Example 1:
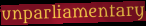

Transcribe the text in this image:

unparliamentary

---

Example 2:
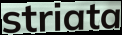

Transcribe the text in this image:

striata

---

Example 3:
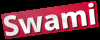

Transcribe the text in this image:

Swami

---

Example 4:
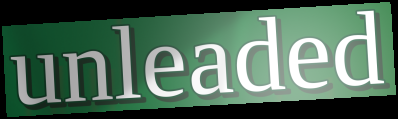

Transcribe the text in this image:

unleaded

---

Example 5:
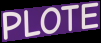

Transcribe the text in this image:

PLOTE